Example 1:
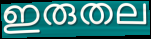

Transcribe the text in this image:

ഇരുതല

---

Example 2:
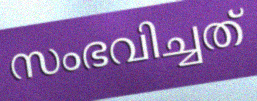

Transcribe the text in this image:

സംഭവിച്ചത്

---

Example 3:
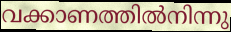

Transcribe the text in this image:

വക്കാണത്തിൽനിന്നു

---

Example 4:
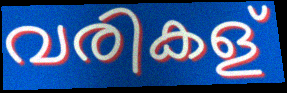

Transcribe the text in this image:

വരികള്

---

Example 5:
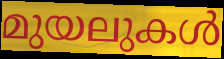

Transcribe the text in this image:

മുയലുകൾ